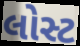
લોસ્ટ